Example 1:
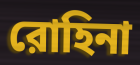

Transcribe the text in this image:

রোহিনা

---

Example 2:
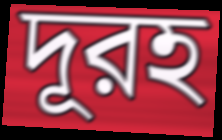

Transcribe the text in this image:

দূরহ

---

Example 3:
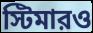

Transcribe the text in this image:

স্টিমারও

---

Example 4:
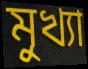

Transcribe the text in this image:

মুখ্যা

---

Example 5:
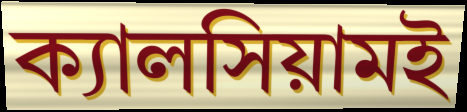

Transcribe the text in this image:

ক্যালসিয়ামই